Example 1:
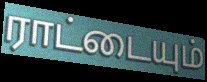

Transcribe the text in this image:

ராட்டையும்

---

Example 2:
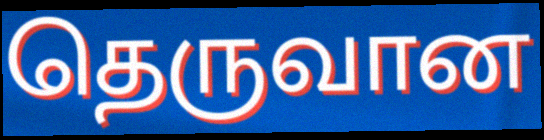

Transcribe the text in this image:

தெருவான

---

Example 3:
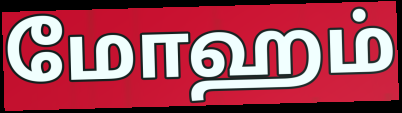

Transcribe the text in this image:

மோஹம்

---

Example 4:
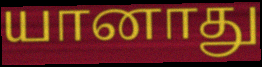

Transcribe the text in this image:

யானாது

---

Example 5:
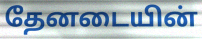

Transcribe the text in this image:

தேனடையின்